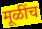
मूळींच